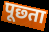
पूछ्ता